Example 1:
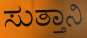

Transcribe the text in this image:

ಸುತ್ತಾನಿ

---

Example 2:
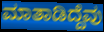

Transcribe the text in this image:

ಮಾತಾಡಿದ್ದೆವು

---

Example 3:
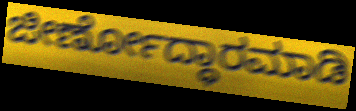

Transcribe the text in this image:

ಜೀರ್ಣೋದ್ಧಾರಮಾಡಿ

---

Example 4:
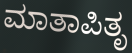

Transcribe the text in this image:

ಮಾತಾಪಿತೃ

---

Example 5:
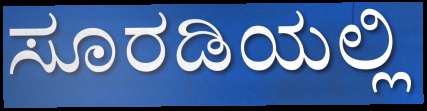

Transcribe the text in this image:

ಸೂರಡಿಯಲ್ಲಿ